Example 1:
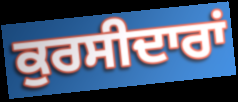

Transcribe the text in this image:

ਕੁਰਸੀਦਾਰਾਂ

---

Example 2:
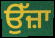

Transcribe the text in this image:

ਉੱਜ਼ਾ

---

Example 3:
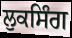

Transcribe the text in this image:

ਲੁਕਸਿੰਗ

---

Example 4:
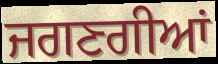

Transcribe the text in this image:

ਜਗਣਗੀਆਂ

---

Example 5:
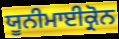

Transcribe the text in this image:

ਯੂਨੀਮਾਈਕ੍ਰੋਨ